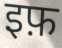
इफ़